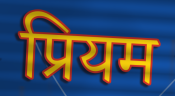
प्रियम